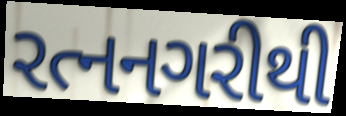
રત્નનગરીથી